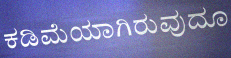
ಕಡಿಮೆಯಾಗಿರುವುದೂ